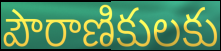
పౌరాణికులకు